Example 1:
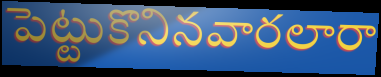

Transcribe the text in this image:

పెట్టుకొనినవారలారా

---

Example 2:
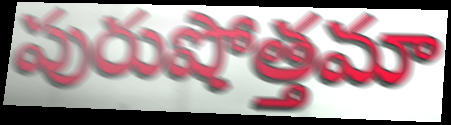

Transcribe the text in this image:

పురుషోత్తమా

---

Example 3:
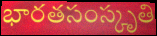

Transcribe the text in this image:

భారతసంస్కృతి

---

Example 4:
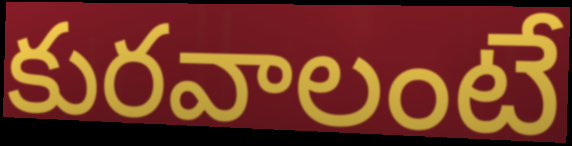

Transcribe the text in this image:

కురవాలంటే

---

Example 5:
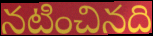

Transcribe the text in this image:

నటించినది